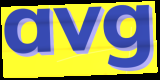
avg